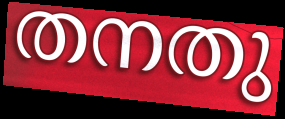
തനതു